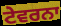
ਟੇਵਰਨਾ